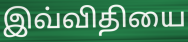
இவ்விதியை